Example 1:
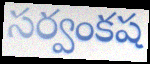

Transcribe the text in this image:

సర్వంకష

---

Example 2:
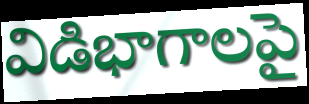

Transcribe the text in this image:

విడిభాగాలపై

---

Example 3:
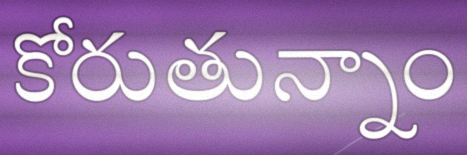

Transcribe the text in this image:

కోరుతున్నాం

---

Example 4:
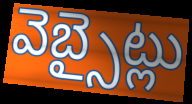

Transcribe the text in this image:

వెబ్సైట్లు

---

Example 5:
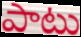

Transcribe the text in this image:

పాటు